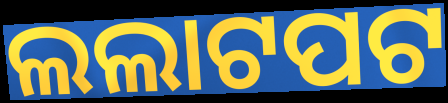
ଲଲାଟପଟ